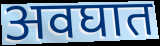
अवघात